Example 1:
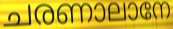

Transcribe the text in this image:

ചരണാലാനേ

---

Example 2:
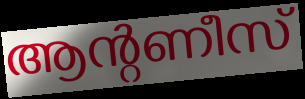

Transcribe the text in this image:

ആന്റണീസ്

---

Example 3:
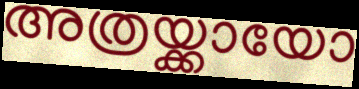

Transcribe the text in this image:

അത്രയ്ക്കായോ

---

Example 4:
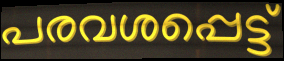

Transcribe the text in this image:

പരവശപ്പെട്ട്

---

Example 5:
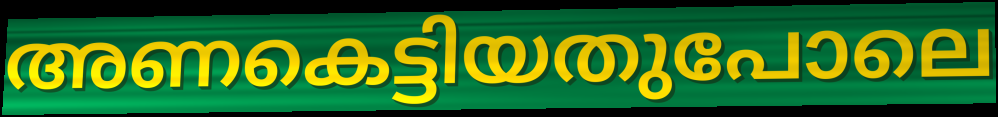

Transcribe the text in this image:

അണകെട്ടിയതുപോലെ